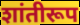
शांतीरूप